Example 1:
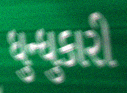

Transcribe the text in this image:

ધુન્ધુકારી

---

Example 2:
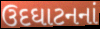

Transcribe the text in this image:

ઉદઘાટનનાં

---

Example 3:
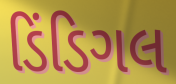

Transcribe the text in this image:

ડિંડિગલ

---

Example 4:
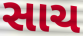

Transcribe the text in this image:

સાચ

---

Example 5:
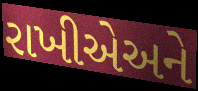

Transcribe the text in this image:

રાખીએઅને